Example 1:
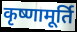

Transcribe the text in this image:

कृष्णामूर्ति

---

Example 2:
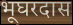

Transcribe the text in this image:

भूघरदास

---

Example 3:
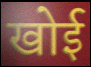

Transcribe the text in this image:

खोई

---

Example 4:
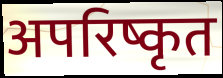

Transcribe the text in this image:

अपरिष्कृत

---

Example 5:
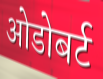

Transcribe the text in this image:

ओडोबर्ट